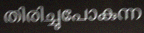
തിരിച്ചുപോകുന്ന